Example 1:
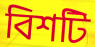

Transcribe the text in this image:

বিশটি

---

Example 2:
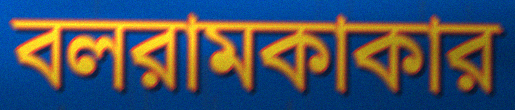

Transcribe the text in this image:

বলরামকাকার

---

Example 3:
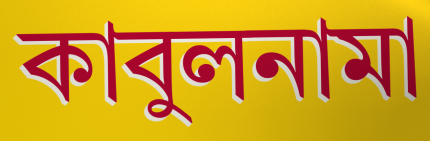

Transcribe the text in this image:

কাবুলনামা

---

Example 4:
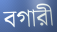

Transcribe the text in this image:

বগারী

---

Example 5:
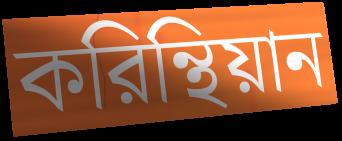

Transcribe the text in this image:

করিন্থিয়ান